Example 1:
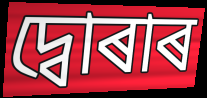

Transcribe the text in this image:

দ্বোৰাৰ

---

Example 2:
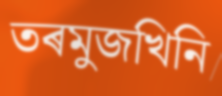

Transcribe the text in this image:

তৰমুজখিনি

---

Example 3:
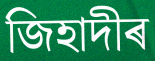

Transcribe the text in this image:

জিহাদীৰ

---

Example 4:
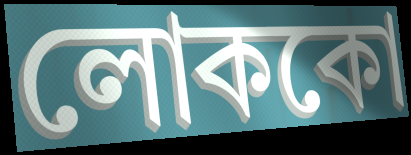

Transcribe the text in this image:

লোককো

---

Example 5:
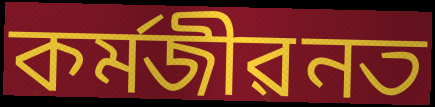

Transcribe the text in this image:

কৰ্মজীৱনত